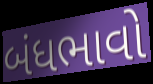
બંધભાવો